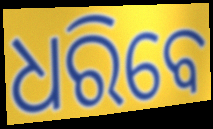
ଧରିବେ